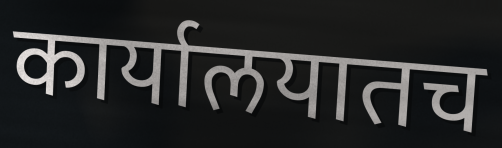
कार्यालयातच